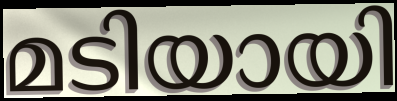
മടിയായി